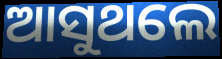
ଆସୁଥଲେ